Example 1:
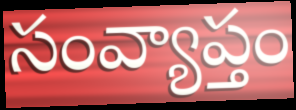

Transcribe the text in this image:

సంవ్యాప్తం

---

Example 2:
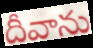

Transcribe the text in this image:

దీవాను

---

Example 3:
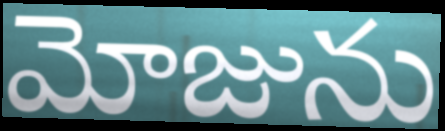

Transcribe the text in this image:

మోజును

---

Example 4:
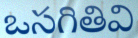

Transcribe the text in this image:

ఒసగితివి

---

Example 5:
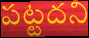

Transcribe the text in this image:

పట్టదని